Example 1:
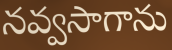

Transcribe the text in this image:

నవ్వసాగాను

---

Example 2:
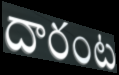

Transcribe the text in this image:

దారంట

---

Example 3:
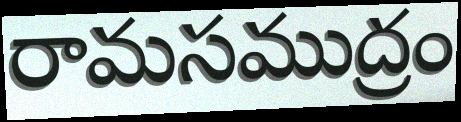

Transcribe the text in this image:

రామసముద్రం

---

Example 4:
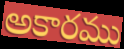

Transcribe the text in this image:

అకారము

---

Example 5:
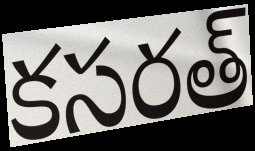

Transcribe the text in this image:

కసరత్